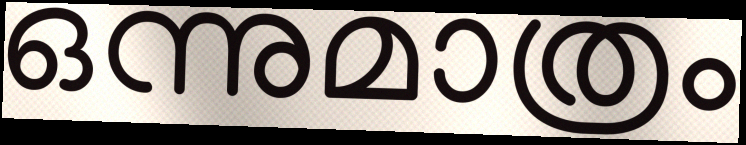
ഒന്നുമാത്രം